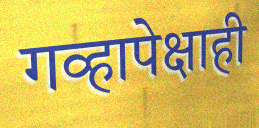
गव्हापेक्षाही